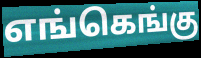
எங்கெங்கு